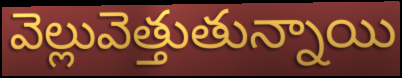
వెల్లువెత్తుతున్నాయి